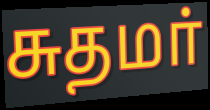
சுதமர்